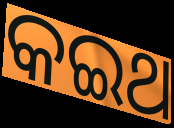
କଇଥ